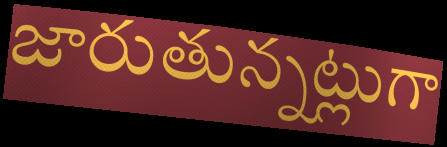
జారుతున్నట్లుగా